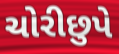
ચોરીછુપે